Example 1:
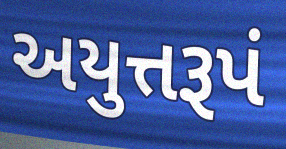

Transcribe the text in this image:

અયુત્તરૂપં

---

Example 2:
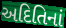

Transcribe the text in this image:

અદિતિનાં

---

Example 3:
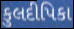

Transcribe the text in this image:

કુલદીપિકા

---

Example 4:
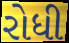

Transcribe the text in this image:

રોધી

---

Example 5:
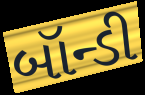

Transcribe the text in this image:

બૉન્ડી